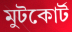
মুটকোর্ট